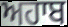
ਅਹਾਬ